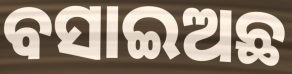
ବସାଇଅଛ